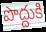
పొద్దుకి